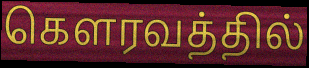
கௌரவத்தில்